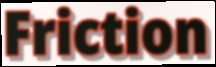
Friction